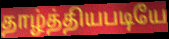
தாழ்த்தியபடியே